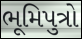
ભૂમિપુત્રો